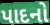
પાદનો